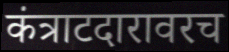
कंत्राटदारावरच